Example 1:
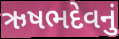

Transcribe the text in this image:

ઋષભદેવનું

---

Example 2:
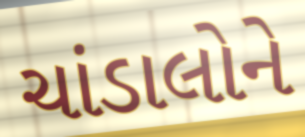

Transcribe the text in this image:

ચાંડાલોને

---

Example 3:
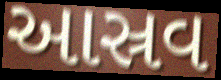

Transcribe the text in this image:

આસ્રવ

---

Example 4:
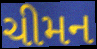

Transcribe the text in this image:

ચીમન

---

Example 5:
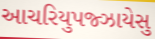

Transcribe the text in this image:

આચરિયુપજ્ઝાયેસુ